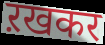
ऱखकर